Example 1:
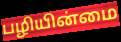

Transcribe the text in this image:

பழியின்மை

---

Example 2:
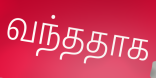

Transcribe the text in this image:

வந்ததாக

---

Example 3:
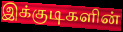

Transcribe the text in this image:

இக்குடிகளின்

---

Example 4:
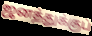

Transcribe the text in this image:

ஜனத்துக்குப்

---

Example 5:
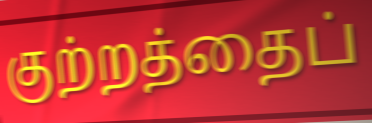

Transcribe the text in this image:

குற்றத்தைப்